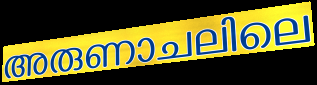
അരുണാചലിലെ